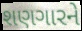
શણગારને